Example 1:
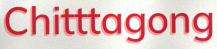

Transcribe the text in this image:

Chitttagong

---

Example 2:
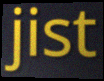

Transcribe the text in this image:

jist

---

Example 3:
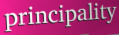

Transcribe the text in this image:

principality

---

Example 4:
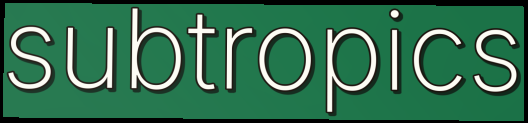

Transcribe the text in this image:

subtropics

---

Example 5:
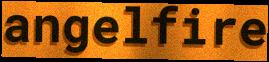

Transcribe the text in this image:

angelfire